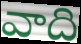
వాది